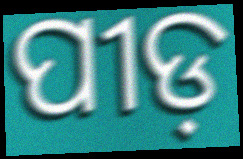
ପୀଡ଼